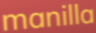
manilla